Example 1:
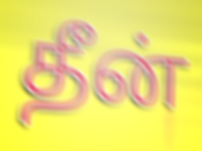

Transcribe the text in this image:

தீன்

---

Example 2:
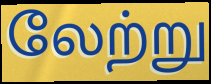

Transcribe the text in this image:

லேற்று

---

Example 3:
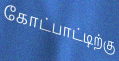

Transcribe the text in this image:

கோட்பாட்டிற்கு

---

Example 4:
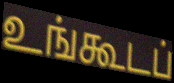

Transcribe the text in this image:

உங்கூடப்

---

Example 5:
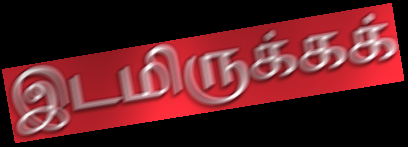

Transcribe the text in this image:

இடமிருக்கக்